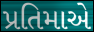
પ્રતિમાએ